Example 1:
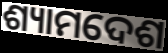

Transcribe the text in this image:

ଶ୍ୟାମଦେଶ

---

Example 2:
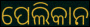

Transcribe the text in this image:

ପେଲିକାନ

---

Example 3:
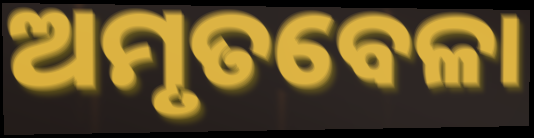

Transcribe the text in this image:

ଅମୃତବେଳା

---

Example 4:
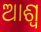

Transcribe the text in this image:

ଆଶ୍ୱ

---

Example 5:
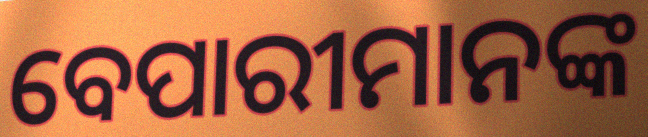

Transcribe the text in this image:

ବେପାରୀମାନଙ୍କ